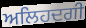
ਅਲਿਹਦਗੀ